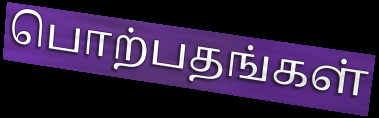
பொற்பதங்கள்